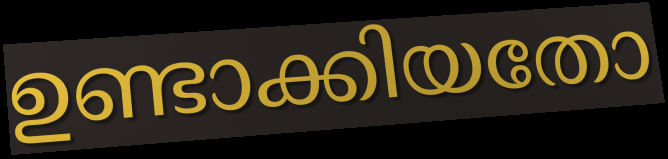
ഉണ്ടാക്കിയതോ